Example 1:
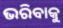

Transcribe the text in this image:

ଭରିବାକୁ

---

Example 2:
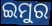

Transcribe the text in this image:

ଇମୁର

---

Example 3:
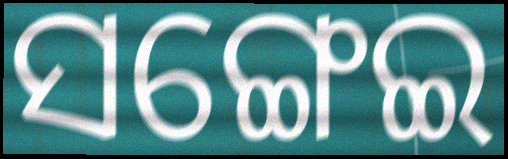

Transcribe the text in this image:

ସଙ୍ଗେଇ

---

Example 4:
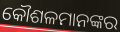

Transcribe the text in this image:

କୌଶଳମାନଙ୍କର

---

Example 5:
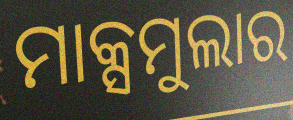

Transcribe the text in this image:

ମାକ୍ସମୁଲାର